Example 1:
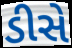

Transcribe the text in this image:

ડીસે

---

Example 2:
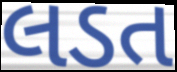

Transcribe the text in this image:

લડત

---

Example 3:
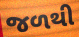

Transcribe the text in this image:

જળથી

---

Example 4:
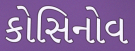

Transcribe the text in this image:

કોસિનોવ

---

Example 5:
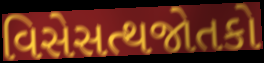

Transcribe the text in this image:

વિસેસત્થજોતકો